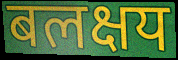
बलक्षय